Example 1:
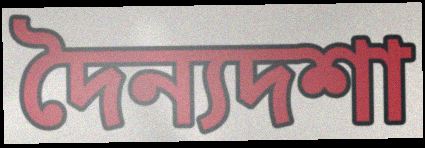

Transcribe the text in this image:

দৈন্যদশা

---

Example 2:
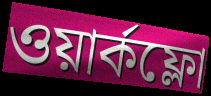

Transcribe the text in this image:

ওয়ার্কফ্লো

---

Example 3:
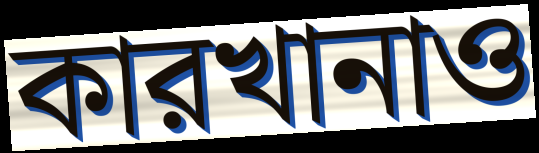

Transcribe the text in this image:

কারখানাও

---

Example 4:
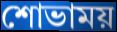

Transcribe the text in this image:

শোভাময়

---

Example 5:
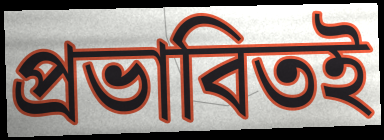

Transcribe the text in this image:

প্রভাবিতই